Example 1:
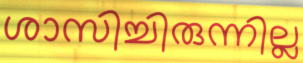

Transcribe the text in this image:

ശാസിച്ചിരുന്നില്ല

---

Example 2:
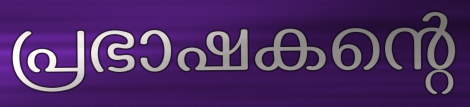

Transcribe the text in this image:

പ്രഭാഷകന്റെ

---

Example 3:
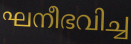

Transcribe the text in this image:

ഘനീഭവിച്ച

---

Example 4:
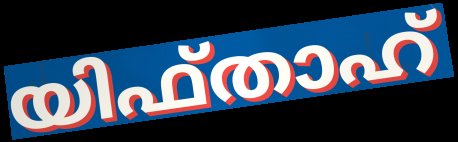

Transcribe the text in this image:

യിഫ്താഹ്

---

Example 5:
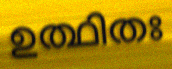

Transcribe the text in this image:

ഉത്ഥിതഃ